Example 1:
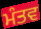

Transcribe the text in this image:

ਮੰਤਵ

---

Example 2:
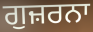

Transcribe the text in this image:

ਗੁਜ਼ਰਨਾ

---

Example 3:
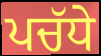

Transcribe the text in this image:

ਪਚੱਧੇ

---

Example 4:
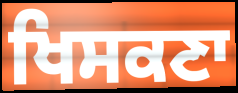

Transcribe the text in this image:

ਖਿਸਕਣਾ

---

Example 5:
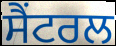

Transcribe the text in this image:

ਸੈਂਟਰਲ